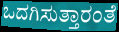
ಒದಗಿಸುತ್ತಾರಂತೆ